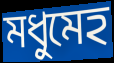
মধুমেহ